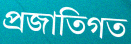
প্রজাতিগত